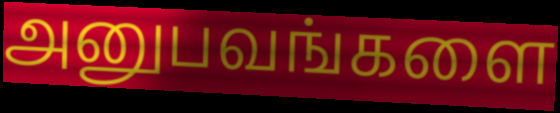
அனுபவங்களை